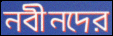
নবীনদের